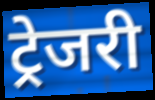
ट्रेजरी